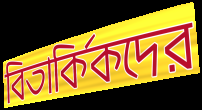
বিতার্কিকদের